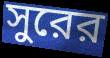
সুরের